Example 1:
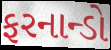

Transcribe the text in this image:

ફરનાન્ડો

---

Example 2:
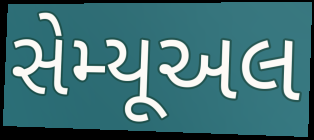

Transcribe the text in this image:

સેમ્યૂઅલ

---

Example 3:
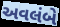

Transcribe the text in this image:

અવલંબે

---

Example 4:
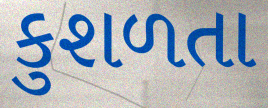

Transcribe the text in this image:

કુશળતા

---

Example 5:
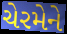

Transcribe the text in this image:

ચેરમેને